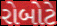
રોબોટે